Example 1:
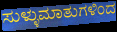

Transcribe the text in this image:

ಸುಳ್ಳುಮಾತುಗಳಿಂದ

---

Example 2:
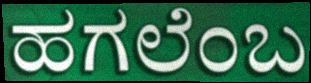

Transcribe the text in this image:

ಹಗಲೆಂಬ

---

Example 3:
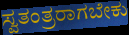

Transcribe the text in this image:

ಸ್ವತಂತ್ರರಾಗಬೇಕು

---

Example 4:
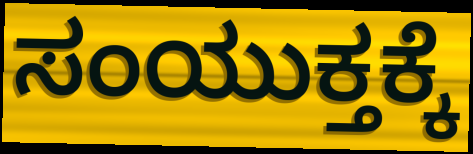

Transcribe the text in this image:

ಸಂಯುಕ್ತಕ್ಕೆ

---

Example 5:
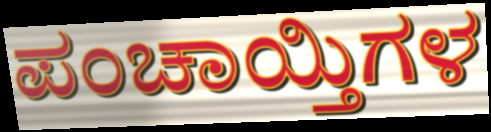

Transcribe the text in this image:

ಪಂಚಾಯ್ತಿಗಳ